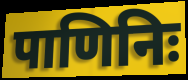
पाणिनिः